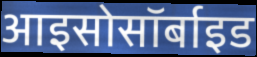
आइसोसॉर्बाइड